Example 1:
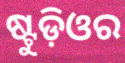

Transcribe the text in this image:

ଷ୍ଟୁଡ଼ିଓର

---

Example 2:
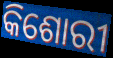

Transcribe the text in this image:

କିଶୋରୀ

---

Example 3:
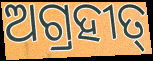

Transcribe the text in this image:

ଅଗ୍ରହୀତ୍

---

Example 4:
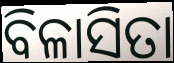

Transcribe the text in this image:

ବିଳାସିତା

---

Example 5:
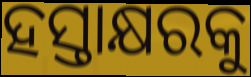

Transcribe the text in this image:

ହସ୍ତାକ୍ଷରକୁ